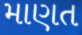
માણત